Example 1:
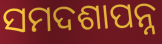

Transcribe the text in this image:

ସମଦଶାପନ୍ନ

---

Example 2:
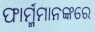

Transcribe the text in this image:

ଫାର୍ମ୍ମମାନଙ୍କରେ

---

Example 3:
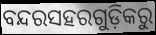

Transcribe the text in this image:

ବନ୍ଦରସହରଗୁଡ଼ିକରୁ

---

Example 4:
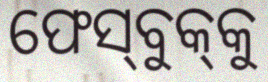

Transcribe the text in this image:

ଫେସ୍‌ବୁକ୍‌କୁ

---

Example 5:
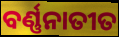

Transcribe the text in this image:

ବର୍ଣ୍ଣନାତୀତ